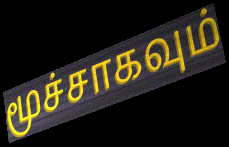
மூச்சாகவும்